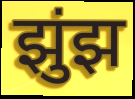
झुंझ